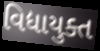
વિદ્યાયુક્ત